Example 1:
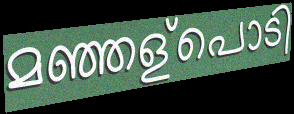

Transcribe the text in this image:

മഞ്ഞള്പൊടി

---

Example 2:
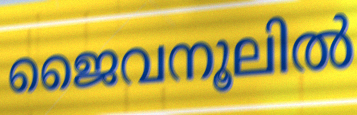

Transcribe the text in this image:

ജൈവനൂലിൽ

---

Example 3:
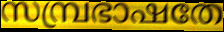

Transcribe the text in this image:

സമ്പ്രഭാഷതേ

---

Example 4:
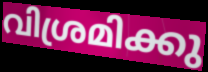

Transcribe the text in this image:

വിശ്രമിക്കു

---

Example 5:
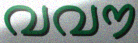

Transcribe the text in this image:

വവൗ